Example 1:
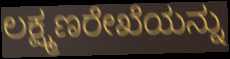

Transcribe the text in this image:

ಲಕ್ಷ್ಮಣರೇಖೆಯನ್ನು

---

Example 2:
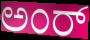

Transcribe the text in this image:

ಅಂರ್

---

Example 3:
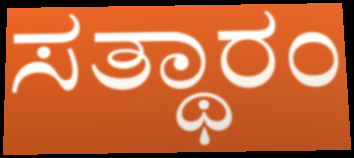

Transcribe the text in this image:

ಸತ್ಥಾರಂ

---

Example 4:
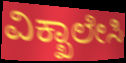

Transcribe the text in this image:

ವಿಕ್ಖಾಲೇಸಿ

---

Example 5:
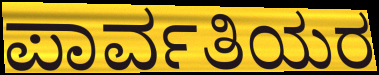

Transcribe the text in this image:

ಪಾರ್ವತಿಯರ